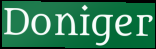
Doniger